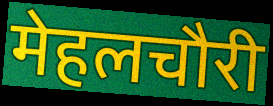
मेहलचौरी